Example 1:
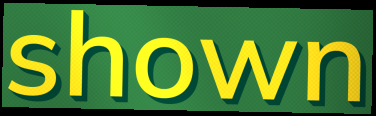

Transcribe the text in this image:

shown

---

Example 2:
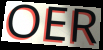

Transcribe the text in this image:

OER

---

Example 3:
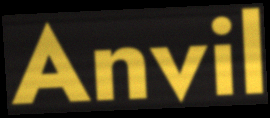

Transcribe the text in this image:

Anvil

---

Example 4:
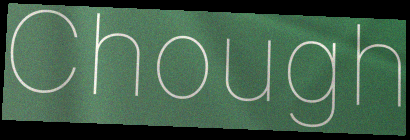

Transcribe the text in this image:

Chough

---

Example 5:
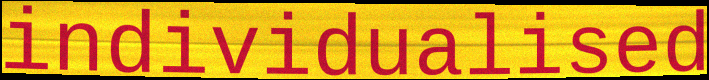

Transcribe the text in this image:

individualised